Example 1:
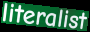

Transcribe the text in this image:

literalist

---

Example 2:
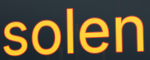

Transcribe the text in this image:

solen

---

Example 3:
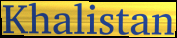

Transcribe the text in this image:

Khalistan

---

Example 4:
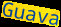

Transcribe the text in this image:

Guava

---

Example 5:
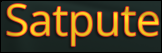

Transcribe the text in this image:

Satpute